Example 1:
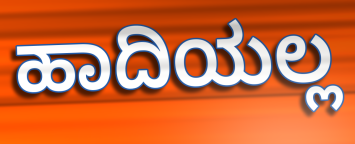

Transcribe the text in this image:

ಹಾದಿಯಲ್ಲ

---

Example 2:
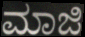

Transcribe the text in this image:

ಮಾಜಿ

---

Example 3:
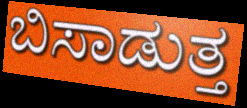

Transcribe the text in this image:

ಬಿಸಾಡುತ್ತ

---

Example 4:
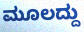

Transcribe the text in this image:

ಮೂಲದ್ದು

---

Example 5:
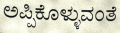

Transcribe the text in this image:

ಅಪ್ಪಿಕೊಳ್ಳುವಂತೆ